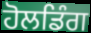
ਹੋਲਡਿੰਗ